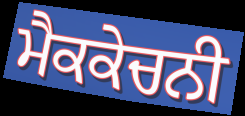
ਮੈਕਕੇਚਨੀ